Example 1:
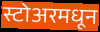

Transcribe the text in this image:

स्टोअरमधून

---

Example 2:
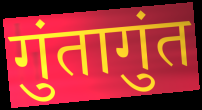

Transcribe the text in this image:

गुंतागुंत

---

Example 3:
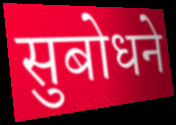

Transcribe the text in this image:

सुबोधने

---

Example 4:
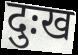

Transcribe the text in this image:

दुःख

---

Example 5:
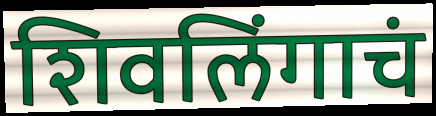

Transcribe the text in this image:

शिवलिंगाचं